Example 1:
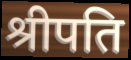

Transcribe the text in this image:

श्रीपति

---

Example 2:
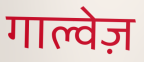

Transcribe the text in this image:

गाल्वेज़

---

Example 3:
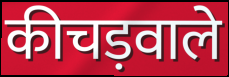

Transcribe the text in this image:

कीचड़वाले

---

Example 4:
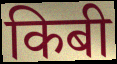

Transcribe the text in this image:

किबी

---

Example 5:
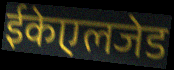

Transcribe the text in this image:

ईकेएलजेड